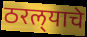
ठरल्याचे